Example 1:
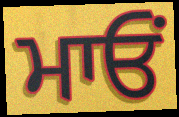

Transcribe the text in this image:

ਮਾਓਂ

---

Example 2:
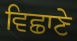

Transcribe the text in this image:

ਵਿਛਾਣੇ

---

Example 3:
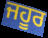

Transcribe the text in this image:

ਜਹੂਰ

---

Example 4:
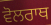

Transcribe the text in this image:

ਵੋਲਰਾਥ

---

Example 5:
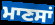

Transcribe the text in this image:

ਮਾਣਸਾਂ